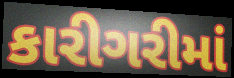
કારીગરીમાં